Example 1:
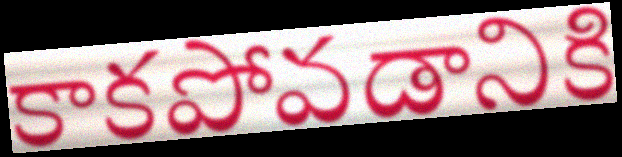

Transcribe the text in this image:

కాకపోవడానికి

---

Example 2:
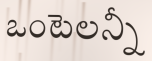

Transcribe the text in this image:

ఒంటెలన్నీ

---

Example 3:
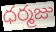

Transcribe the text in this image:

ధర్మజు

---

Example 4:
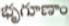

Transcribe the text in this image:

భృగూణాం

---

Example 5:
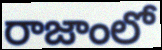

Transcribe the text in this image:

రాజాంలో